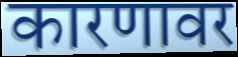
कारणावर